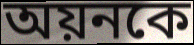
অয়নকে